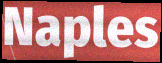
Naples